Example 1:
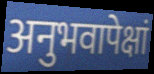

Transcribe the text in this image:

अनुभवापेक्षां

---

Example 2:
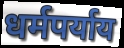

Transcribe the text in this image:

धर्मपर्याय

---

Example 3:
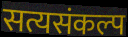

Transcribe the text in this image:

सत्यसंकल्प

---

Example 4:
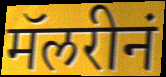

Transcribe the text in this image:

मॅलरीनं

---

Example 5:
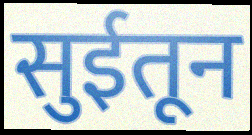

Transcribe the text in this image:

सुईतून